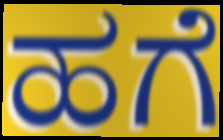
ಹಗೆ